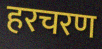
हरचरण